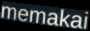
memakai